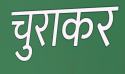
चुराकर